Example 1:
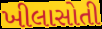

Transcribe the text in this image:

ખીલાસોતી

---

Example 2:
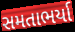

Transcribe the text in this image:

સમતાભર્યા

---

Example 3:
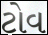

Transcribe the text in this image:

ટોવ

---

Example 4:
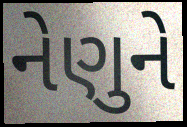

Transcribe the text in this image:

નેણુને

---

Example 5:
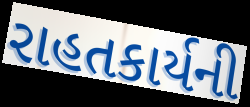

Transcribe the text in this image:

રાહતકાર્યની